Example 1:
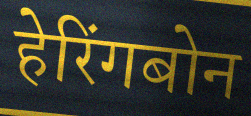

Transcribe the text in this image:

हेरिंगबोन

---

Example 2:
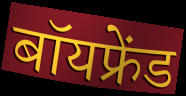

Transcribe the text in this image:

बॉयफ्रेंड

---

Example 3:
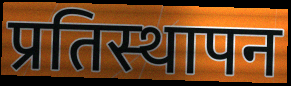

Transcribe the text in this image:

प्रतिस्थापन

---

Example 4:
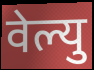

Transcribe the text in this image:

वेल्यु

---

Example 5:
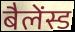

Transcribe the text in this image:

बैलेंस्ड